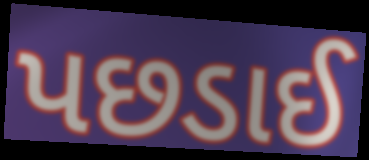
પછડાઈ